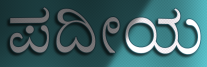
ಪದೀಯ